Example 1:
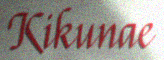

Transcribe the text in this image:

Kikunae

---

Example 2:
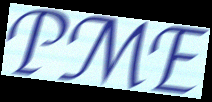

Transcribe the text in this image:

PME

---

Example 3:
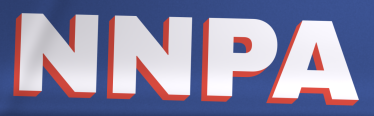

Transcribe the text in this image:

NNPA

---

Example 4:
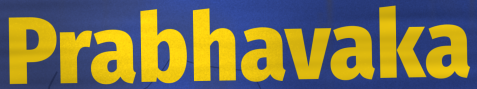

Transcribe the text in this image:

Prabhavaka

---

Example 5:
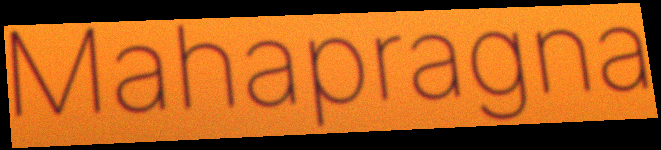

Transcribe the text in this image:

Mahapragna